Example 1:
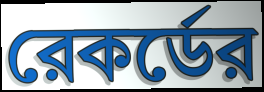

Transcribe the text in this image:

রেকর্ডের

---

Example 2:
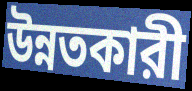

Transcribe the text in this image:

উন্নতকারী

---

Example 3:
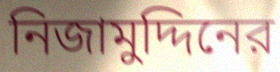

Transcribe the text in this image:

নিজামুদ্দিনের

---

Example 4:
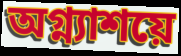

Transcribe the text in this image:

অগ্ন্যাশয়ে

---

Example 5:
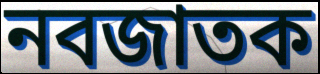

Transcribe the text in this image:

নবজাতক